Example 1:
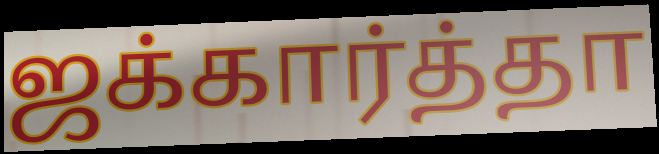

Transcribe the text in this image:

ஜக்கார்த்தா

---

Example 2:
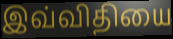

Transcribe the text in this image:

இவ்விதியை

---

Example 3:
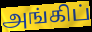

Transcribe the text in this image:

அங்கிப்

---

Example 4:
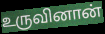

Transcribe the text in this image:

உருவினான்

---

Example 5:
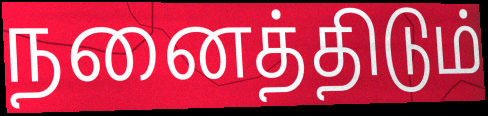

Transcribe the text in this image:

நனைத்திடும்